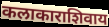
कलाकाराशिवाय